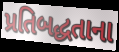
પ્રતિબદ્ધતાના